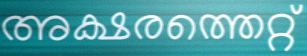
അക്ഷരത്തെറ്റ്